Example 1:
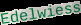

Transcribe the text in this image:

Edelwiess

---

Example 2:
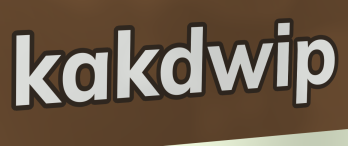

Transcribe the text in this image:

kakdwip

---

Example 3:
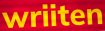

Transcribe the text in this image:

wriiten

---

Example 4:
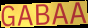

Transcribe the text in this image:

GABAA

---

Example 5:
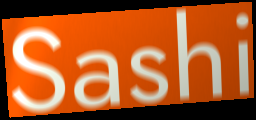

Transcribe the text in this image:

Sashi